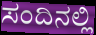
ಸಂದಿನಲ್ಲಿ